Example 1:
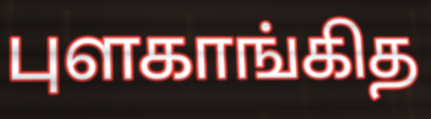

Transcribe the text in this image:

புளகாங்கித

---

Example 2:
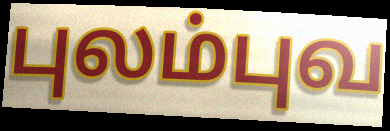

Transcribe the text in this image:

புலம்புவ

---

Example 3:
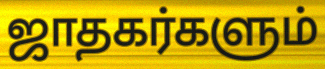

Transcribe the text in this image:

ஜாதகர்களும்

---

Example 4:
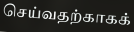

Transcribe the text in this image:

செய்வதற்காகக்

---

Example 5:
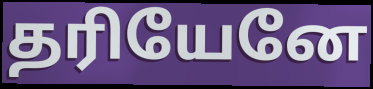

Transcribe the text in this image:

தரியேனே